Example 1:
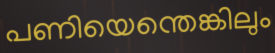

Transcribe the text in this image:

പണിയെന്തെങ്കിലും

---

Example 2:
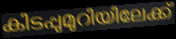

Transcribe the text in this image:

കിടപ്പുമുറിയിലേക്ക്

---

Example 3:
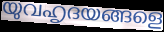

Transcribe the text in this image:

യുവഹൃദയങ്ങളെ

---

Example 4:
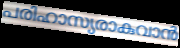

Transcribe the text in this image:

പരിഹാസ്യരാകുവാൻ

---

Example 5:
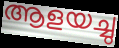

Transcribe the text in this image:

ആളയച്ചു